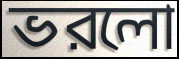
ভরলো